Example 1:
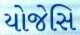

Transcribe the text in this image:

યોજેસિ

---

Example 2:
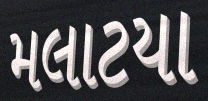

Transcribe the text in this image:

મલાટયા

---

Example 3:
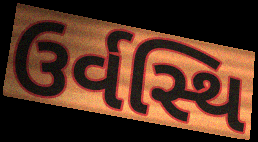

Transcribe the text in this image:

ઉર્વસ્થિ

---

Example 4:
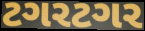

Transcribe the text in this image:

ટગરટગર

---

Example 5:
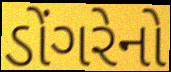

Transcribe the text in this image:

ડોંગરેનો